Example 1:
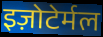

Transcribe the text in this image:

इज़ोटेर्मल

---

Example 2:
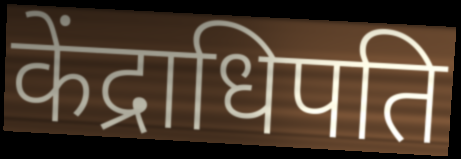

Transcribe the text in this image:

केंद्राधिपति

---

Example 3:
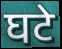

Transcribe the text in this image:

घटे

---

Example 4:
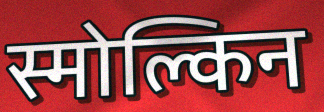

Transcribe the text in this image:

स्मोल्किन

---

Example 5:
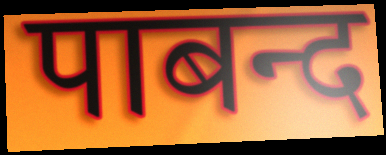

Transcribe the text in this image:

पाबन्द